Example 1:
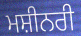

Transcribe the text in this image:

ਮਸ਼ੀਨਰੀ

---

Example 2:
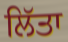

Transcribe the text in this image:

ਲਿੱਤਾ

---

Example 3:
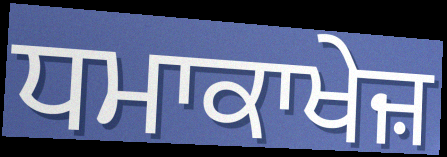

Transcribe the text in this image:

ਧਮਾਕਾਖੇਜ਼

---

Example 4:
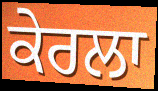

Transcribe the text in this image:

ਕੇਰਲਾ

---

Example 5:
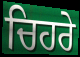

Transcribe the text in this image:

ਚਿਹਰੇ